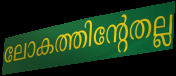
ലോകത്തിന്റേതല്ല